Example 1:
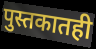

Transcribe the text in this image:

पुस्तकातही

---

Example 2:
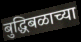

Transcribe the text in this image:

बुद्धिबळाच्या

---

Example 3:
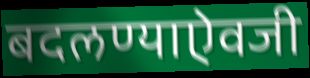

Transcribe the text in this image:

बदलण्याऐवजी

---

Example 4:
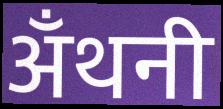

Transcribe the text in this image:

अँथनी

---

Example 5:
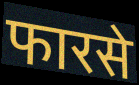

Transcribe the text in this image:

फारसे